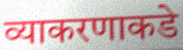
व्याकरणाकडे